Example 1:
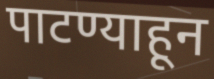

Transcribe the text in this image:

पाटण्याहून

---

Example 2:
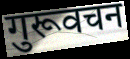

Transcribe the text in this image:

गुरूवचन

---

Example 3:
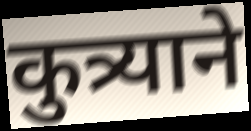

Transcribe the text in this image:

कुत्र्याने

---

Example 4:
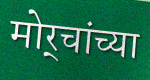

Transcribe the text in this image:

मोर्चांच्या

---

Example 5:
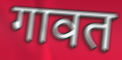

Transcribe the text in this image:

गावत